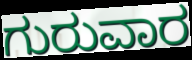
ಗುರುವಾರ